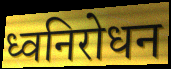
ध्वनिरोधन